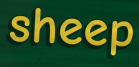
sheep